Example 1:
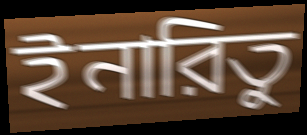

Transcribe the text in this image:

ইনারিতু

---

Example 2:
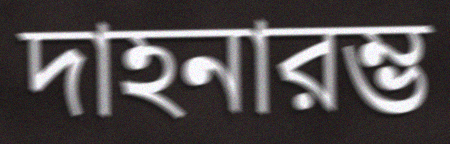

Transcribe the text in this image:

দাহনারম্ভ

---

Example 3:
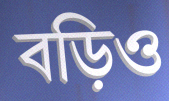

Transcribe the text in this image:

বড়িও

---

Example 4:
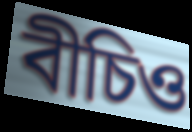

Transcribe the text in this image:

বীচিও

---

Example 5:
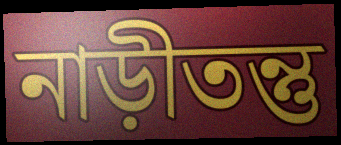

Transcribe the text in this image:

নাড়ীতন্তু